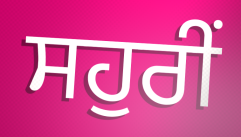
ਸਹੁਰੀਂ